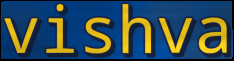
vishva